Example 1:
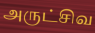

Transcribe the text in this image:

அருட்சிவ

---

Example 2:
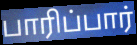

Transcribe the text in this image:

பாரிப்பார்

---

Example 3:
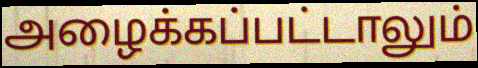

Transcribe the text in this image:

அழைக்கப்பட்டாலும்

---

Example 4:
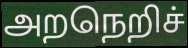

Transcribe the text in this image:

அறநெறிச்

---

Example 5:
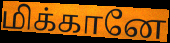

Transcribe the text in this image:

மிக்கானே